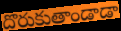
దొరుకుతాండాడా